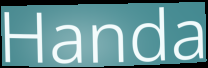
Handa